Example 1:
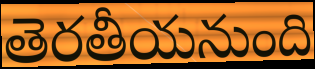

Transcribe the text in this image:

తెరతీయనుంది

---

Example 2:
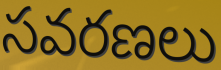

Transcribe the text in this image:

సవరణలు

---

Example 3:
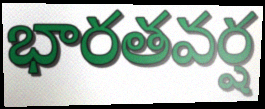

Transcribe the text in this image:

భారతవర్ష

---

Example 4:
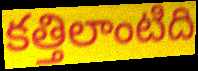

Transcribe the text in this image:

కత్తిలాంటిది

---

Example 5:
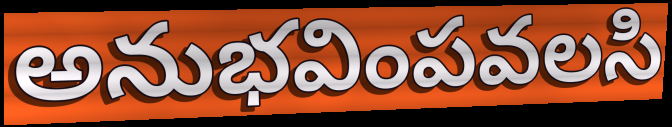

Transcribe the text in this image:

అనుభవింపవలసి